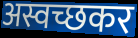
अस्वच्छकर